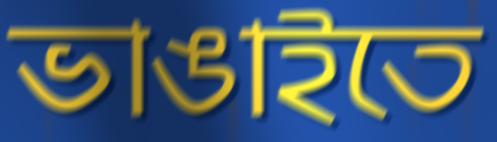
ভাঙাইতে